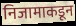
निजामाकडून